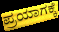
ಪ್ರಯಾಗಕ್ಕೆ